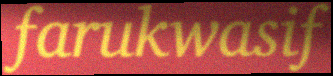
farukwasif